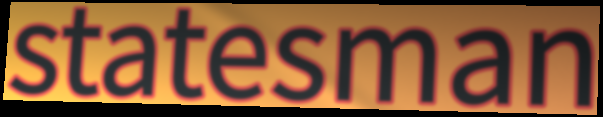
statesman